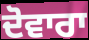
ਦੋਵਾਰਾ